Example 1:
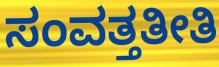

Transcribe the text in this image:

ಸಂವತ್ತತೀತಿ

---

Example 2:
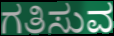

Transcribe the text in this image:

ಗತಿಸುವ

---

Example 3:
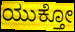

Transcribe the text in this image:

ಯುಕ್ತೋ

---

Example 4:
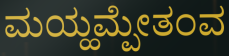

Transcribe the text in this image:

ಮಯ್ಹಮ್ಪೇತಂವ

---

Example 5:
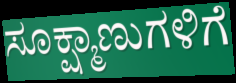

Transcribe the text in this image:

ಸೂಕ್ಷ್ಮಾಣುಗಳಿಗೆ